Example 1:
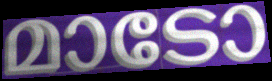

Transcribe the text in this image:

മാടോ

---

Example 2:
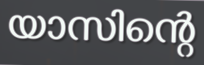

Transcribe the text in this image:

യാസിന്റെ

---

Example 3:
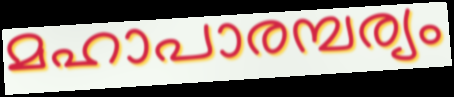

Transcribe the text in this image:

മഹാപാരമ്പര്യം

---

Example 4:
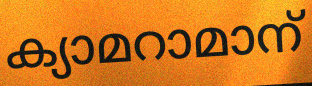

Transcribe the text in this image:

ക്യാമറാമാന്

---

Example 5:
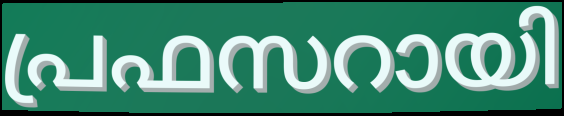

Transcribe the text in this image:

പ്രഫസറായി